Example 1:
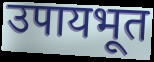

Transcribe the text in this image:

उपायभूत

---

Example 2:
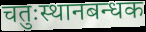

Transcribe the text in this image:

चतुःस्थानबन्धक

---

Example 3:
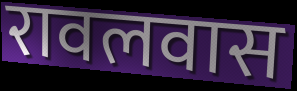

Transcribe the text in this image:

रावलवास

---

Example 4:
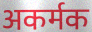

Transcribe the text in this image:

अकर्मक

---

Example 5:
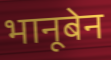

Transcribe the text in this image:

भानूबेन